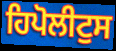
ਹਿਪੋਲੀਟੁਸ